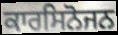
ਕਾਰਸਿਨੋਜਨ